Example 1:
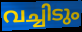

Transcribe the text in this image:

വച്ചിടും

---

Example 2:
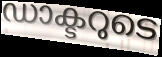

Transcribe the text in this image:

ഡാക്ടറുടെ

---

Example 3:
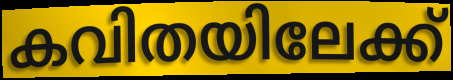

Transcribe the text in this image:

കവിതയിലേക്ക്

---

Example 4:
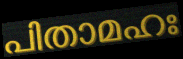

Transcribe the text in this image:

പിതാമഹഃ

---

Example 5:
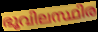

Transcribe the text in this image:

ഭൂവിലസ്ഥിര